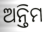
ଅନ୍ତିମ